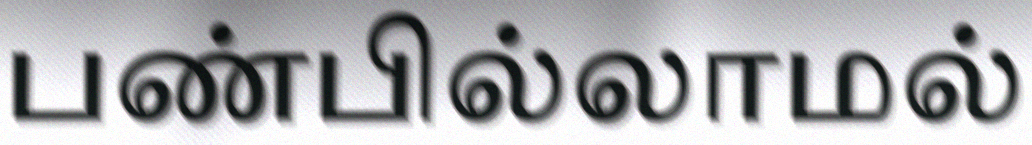
பண்பில்லாமல்